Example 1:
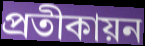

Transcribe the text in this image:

প্রতীকায়ন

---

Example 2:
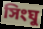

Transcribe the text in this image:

সিংঘু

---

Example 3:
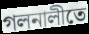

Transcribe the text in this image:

গলনালীতে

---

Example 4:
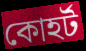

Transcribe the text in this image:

কোহর্ট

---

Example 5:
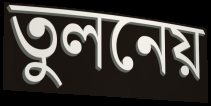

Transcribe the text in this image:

তুলনেয়